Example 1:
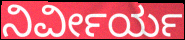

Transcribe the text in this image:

ನಿರ್ವೀರ್ಯ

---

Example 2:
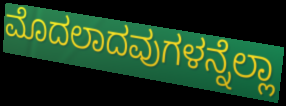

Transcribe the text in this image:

ಮೊದಲಾದವುಗಳನ್ನೆಲ್ಲಾ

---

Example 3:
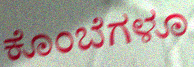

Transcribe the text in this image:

ಕೊಂಬೆಗಳೂ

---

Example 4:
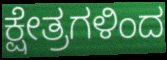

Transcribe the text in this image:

ಕ್ಷೇತ್ರಗಳಿಂದ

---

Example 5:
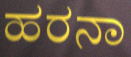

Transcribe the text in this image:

ಹರನಾ